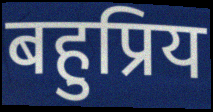
बहुप्रिय